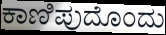
ಕಾಣಿಪುದೊಂದು